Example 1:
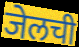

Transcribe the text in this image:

जेलची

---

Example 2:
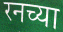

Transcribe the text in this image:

रनच्या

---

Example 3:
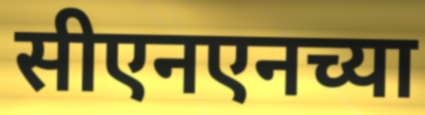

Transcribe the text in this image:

सीएनएनच्या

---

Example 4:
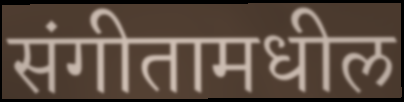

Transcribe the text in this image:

संगीतामधील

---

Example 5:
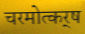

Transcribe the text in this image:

चरमोत्कर्ष